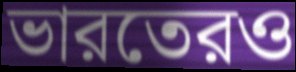
ভারতেরও